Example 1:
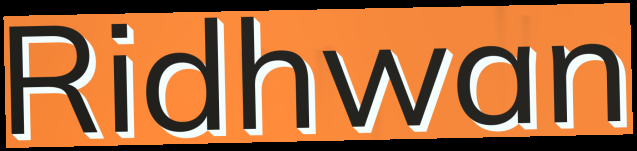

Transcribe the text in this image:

Ridhwan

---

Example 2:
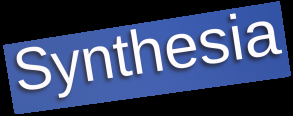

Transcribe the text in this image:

Synthesia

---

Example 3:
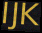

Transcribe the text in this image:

IJK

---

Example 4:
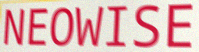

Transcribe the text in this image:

NEOWISE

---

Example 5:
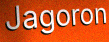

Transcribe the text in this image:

Jagoron